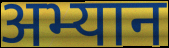
अभ्यान